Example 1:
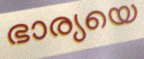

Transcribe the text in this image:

ഭാര്യയെ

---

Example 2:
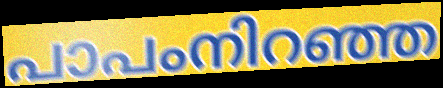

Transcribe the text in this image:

പാപംനിറഞ്ഞ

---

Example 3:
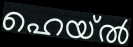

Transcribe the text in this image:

ഹെയ്ൽ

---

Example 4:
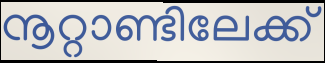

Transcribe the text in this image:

നൂറ്റാണ്ടിലേക്ക്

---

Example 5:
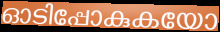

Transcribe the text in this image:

ഓടിപ്പോകുകയോ